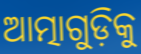
ଆତ୍ମାଗୁଡ଼ିକୁ